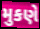
મુકણે